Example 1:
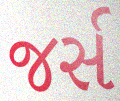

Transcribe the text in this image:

જર્સ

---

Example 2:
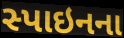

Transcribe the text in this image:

સ્પાઇનના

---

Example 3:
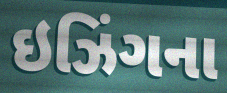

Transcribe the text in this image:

ઇઝિંગના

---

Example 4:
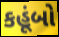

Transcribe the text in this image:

કહૂંબો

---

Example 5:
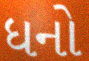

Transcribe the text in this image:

ધનો